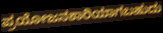
ಪ್ರಯೋಜನಕಾರಿಯಾಗಬಹುದು